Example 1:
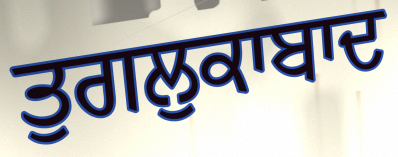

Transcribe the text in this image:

ਤੁਗਲੁਕਾਬਾਦ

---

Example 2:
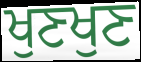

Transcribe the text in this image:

ਖੁਣਖੁਣ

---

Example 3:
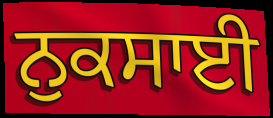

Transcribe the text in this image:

ਨੁਕਸਾਈ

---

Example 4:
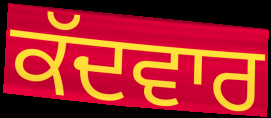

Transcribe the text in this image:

ਕੱਦਵਾਰ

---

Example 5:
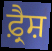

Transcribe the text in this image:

ਫ਼੍ਰੈਸ਼